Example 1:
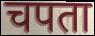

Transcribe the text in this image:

चपता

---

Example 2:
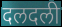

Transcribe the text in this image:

दलदली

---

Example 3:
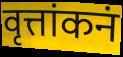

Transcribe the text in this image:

वृत्तांकनं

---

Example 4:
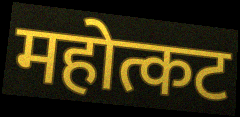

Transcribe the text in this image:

महोत्कट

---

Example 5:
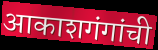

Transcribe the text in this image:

आकाशगंगांची